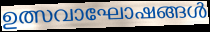
ഉത്സവാഘോഷങ്ങൾ